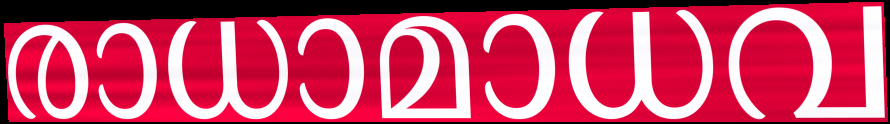
രാധാമാധവ